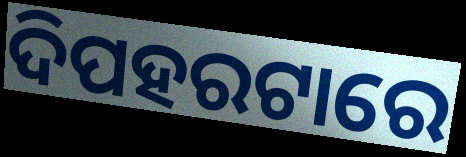
ଦିପହରଟାରେ